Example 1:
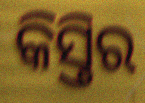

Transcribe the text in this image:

କିସ୍ତିର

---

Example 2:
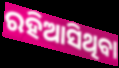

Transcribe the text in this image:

ରହିଆସିଥିବା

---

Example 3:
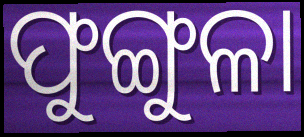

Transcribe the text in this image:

ଫୁଙ୍ଗୁଳା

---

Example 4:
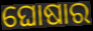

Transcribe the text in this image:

ଘୋଷାର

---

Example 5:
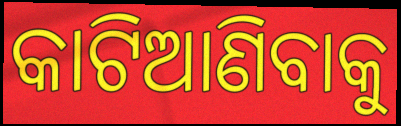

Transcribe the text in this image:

କାଟିଆଣିବାକୁ